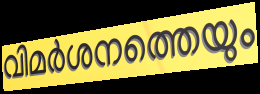
വിമർശനത്തെയും